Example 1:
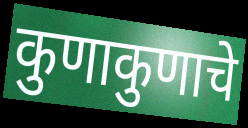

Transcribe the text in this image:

कुणाकुणाचे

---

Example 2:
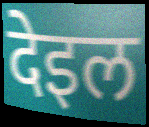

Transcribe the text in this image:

देइल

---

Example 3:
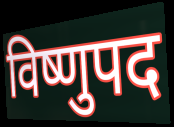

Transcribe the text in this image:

विष्णुपद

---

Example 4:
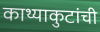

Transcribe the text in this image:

काथ्याकुटांची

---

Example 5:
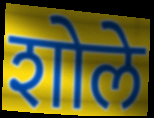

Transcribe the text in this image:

शोले